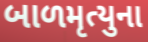
બાળમૃત્યુના